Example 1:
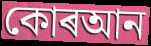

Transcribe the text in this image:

কোৰআন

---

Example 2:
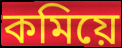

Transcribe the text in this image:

কমিয়ে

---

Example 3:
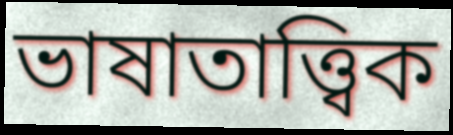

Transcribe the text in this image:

ভাষাতাত্ত্বিক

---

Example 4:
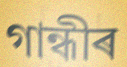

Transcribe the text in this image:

গান্ধীৰ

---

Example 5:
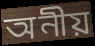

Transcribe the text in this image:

অনীয়